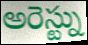
అరెస్ట్ను